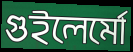
গুইলের্মো